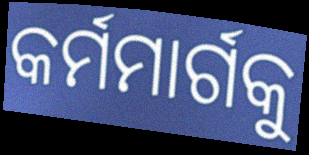
କର୍ମମାର୍ଗକୁ